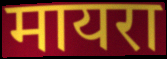
मायरा